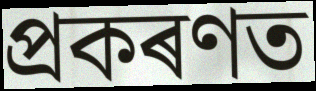
প্ৰকৰণত